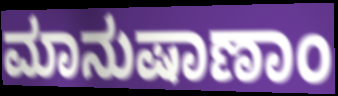
ಮಾನುಷಾಣಾಂ